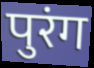
पुरंग